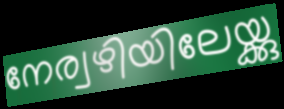
നേര്വഴിയിലേയ്ക്കു